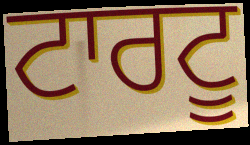
ਟਾਰਟੂ